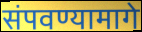
संपवण्यामागे